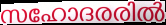
സഹോദരരിൽ